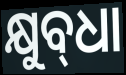
କ୍ଷୁବ୍‌ଧା